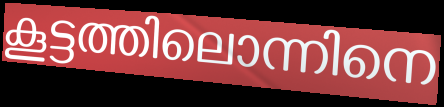
കൂട്ടത്തിലൊന്നിനെ